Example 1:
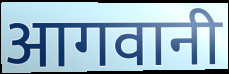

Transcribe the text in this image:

आगवानी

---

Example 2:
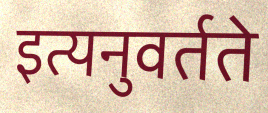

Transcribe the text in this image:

इत्यनुवर्तते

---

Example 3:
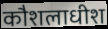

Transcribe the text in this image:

कौशलाधीश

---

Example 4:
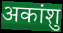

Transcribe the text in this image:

अकांशु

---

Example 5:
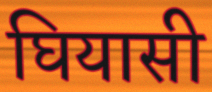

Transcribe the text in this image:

घियासी